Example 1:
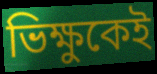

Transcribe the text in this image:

ভিক্ষুকেই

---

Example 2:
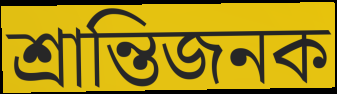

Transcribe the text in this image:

শ্রান্তিজনক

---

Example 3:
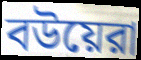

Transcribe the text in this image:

বউয়েরা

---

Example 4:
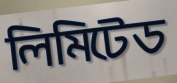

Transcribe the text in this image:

লিমিটেড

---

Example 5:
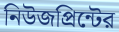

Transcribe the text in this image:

নিউজপ্রিন্টের